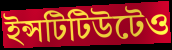
ইন্সটিটিউটেও